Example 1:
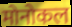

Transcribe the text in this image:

मोनोकल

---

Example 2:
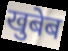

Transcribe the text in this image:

खुबेब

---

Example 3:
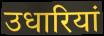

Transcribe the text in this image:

उधारियां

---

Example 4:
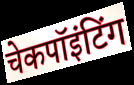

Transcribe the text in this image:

चेकपॉइंटिंग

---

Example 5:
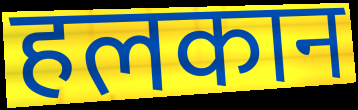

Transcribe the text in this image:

हलकान